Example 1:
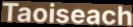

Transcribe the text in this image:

Taoiseach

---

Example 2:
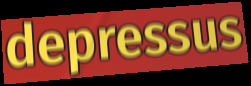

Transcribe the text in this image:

depressus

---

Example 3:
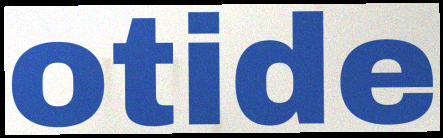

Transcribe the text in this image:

otide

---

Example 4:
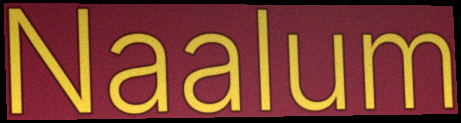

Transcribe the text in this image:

Naalum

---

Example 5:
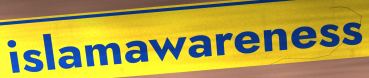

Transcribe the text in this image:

islamawareness